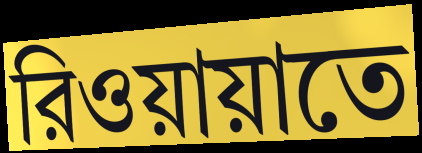
রিওয়ায়াতে